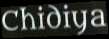
Chidiya